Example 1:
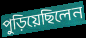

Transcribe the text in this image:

পুড়িয়েছিলেন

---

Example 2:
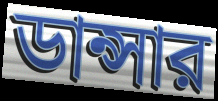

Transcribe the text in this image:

ডান্সার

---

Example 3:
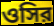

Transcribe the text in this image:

ওসির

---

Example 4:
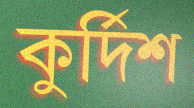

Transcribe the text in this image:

কুর্দিশ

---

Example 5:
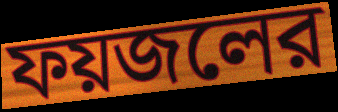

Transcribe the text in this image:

ফয়জলের